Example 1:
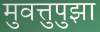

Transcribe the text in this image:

मुवत्तुपुझा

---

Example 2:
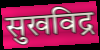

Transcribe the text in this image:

सुखविद्र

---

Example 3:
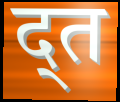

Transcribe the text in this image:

द्त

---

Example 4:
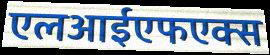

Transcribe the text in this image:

एलआईएफएक्स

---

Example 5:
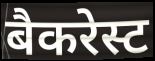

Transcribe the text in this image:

बैकरेस्ट